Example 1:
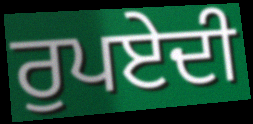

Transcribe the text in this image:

ਰੁਪਏਦੀ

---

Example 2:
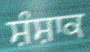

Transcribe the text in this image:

ਸ਼ੰਸ਼ਾਕ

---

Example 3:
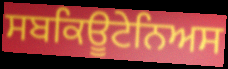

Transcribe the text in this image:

ਸਬਕਿਊਟੇਨਿਅਸ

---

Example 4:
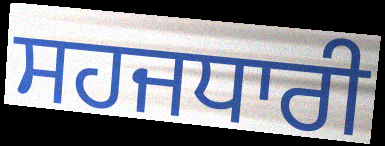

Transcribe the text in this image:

ਸਹਜਧਾਰੀ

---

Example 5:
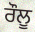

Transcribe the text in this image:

ਰੌਲੂ